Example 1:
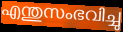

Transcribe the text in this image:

എന്തുസംഭവിച്ചു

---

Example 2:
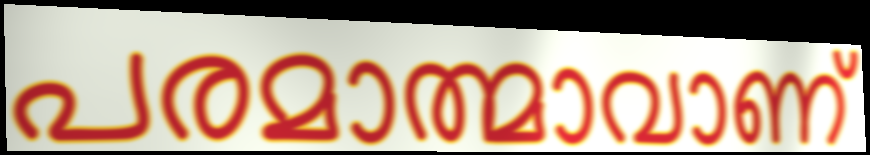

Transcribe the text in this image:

പരമാത്മാവാണ്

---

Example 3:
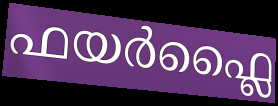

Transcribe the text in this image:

ഫയർഫ്ലൈ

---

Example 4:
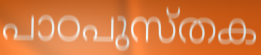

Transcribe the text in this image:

പാഠപുസ്തക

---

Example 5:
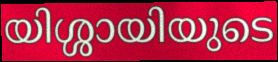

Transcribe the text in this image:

യിശ്ശായിയുടെ